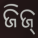
ଜିଜ୍